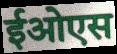
ईओएस